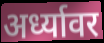
अर्ध्यावर